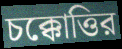
চক্কোত্তির